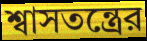
শ্বাসতন্ত্রের